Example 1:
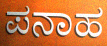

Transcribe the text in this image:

ಪನಾಹ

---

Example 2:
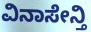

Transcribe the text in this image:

ವಿನಾಸೇನ್ತಿ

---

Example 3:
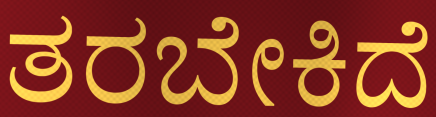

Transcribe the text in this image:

ತರಬೇಕಿದೆ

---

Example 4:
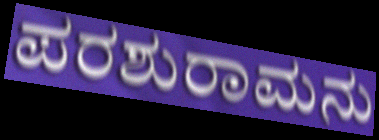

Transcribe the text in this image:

ಪರಶುರಾಮನು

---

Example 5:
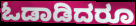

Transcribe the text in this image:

ಓಡಾಡಿದರೂ